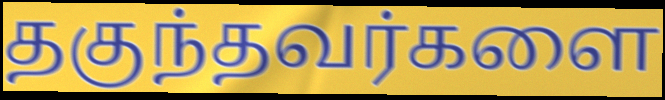
தகுந்தவர்களை